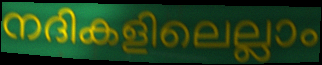
നദികളിലെല്ലാം